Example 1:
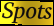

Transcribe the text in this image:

Spots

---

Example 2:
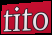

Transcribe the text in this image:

tito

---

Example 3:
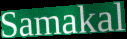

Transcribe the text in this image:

Samakal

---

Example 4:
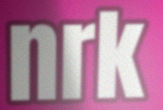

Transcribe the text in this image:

nrk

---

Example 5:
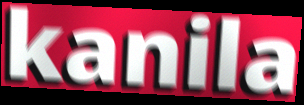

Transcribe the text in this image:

kanila